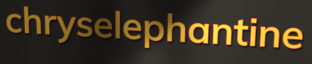
chryselephantine